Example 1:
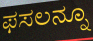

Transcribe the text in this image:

ಫಸಲನ್ನೂ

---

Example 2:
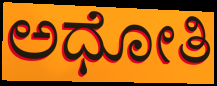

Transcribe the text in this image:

ಅಧೋತಿ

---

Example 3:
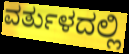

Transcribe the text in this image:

ವರ್ತುಳದಲ್ಲಿ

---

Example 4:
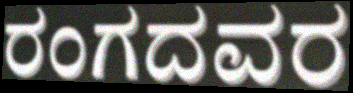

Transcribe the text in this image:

ರಂಗದವರ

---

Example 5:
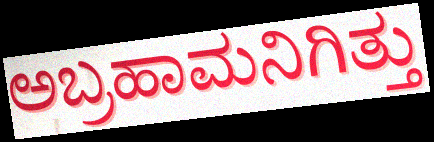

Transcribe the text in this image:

ಅಬ್ರಹಾಮನಿಗಿತ್ತು